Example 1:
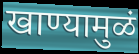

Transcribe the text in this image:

खाण्यामुळं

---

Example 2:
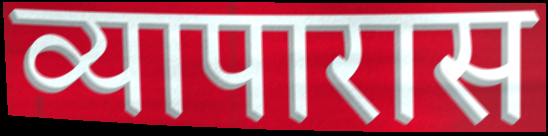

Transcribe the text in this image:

व्यापारास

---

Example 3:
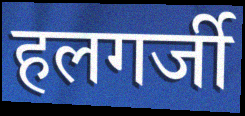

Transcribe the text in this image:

हलगर्जी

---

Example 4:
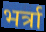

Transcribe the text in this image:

भर्त्रा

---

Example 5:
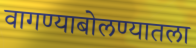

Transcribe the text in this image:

वागण्याबोलण्यातला